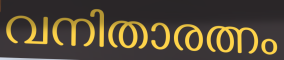
വനിതാരത്നം